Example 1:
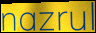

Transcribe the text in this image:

nazrul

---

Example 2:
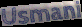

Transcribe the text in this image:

Usmani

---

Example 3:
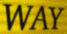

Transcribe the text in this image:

WAY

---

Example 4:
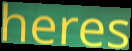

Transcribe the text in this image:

heres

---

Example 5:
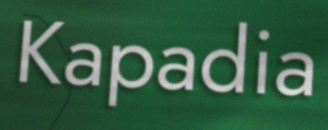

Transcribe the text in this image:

Kapadia